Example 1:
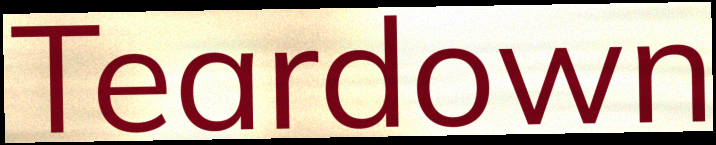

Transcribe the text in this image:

Teardown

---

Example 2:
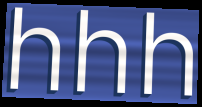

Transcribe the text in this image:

hhh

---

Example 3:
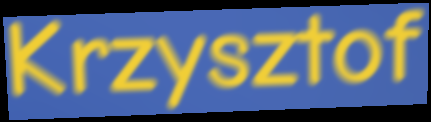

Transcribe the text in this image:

Krzysztof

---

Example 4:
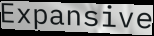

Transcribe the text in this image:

Expansive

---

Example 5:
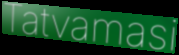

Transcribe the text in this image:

Tatvamasi